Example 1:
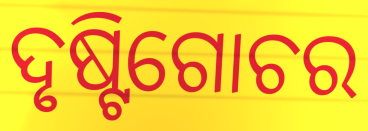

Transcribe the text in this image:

ଦୃଷ୍ଟିଗୋଚର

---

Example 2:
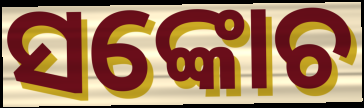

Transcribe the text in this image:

ସଙ୍କୋଚ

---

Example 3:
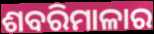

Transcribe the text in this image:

ଶବରିମାଳାର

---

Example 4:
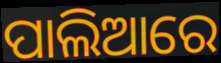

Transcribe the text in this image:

ପାଲିଆରେ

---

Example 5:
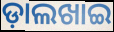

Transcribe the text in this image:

ଡ଼ାଲଖାଇ